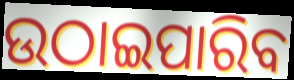
ଉଠାଇପାରିବ